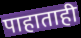
पाहाताही